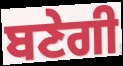
ਬਣੇਗੀ